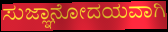
ಸುಜ್ಞಾನೋದಯವಾಗಿ